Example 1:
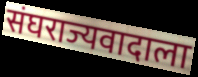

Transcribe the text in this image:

संघराज्यवादाला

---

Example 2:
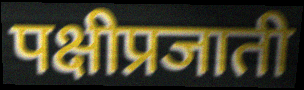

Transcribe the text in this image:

पक्षीप्रजाती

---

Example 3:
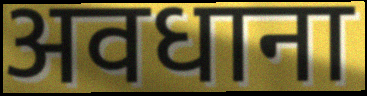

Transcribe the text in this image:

अवधाना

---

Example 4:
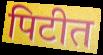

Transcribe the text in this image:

पिटीत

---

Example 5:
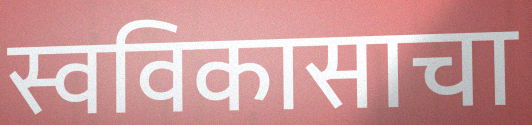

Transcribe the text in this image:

स्वविकासाचा